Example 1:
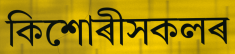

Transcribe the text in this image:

কিশোৰীসকলৰ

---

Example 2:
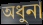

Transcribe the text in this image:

অধুনা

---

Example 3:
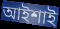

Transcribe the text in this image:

আইশাই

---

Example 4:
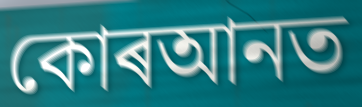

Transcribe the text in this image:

কোৰআনত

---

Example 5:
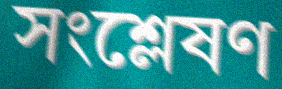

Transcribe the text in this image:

সংশ্লেষণ